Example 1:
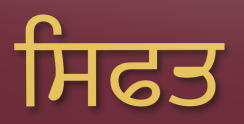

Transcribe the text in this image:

ਸਿਫਤ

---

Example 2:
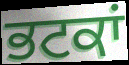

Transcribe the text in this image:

ਭਟਕਾਂ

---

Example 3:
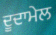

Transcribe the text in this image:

ਦੂਦਾਮੇਲ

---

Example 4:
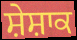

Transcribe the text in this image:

ਸ਼ੇਸ਼ਾਕ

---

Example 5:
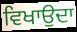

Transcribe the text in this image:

ਵਿਖਾਉਦਾ